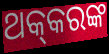
ଥକ୍‌କରଙ୍କ